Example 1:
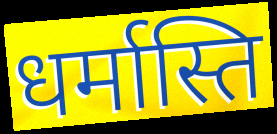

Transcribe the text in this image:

धर्मास्ति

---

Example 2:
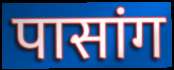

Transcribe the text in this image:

पासांग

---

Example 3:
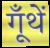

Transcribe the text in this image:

गूँथें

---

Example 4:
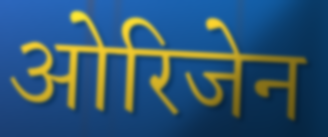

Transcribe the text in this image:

ओरिजेन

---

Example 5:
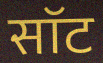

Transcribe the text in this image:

सॉट